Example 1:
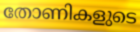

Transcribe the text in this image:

തോണികളുടെ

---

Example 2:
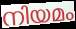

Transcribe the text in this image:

നിയമം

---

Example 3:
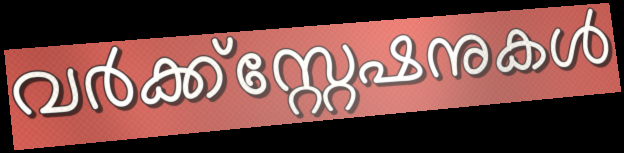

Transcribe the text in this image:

വർക്ക്സ്റ്റേഷനുകൾ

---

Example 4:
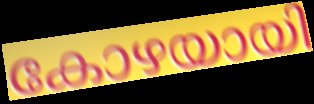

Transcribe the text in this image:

കോഴയായി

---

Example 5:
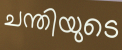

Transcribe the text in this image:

ചന്തിയുടെ